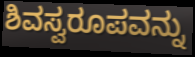
ಶಿವಸ್ವರೂಪವನ್ನು